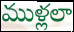
ముళ్లలా